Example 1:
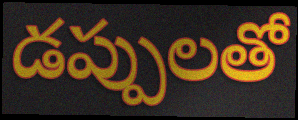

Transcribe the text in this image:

డప్పులతో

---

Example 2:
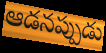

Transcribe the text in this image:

ఆడనప్పుడు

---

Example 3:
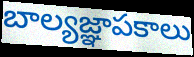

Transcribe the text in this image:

బాల్యజ్ఞాపకాలు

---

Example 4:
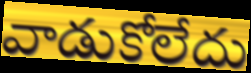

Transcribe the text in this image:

వాడుకోలేదు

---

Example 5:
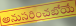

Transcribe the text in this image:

అనుసరించబోయే